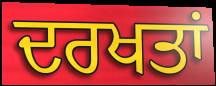
ਦਰਖਤਾਂ